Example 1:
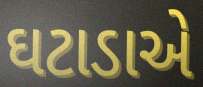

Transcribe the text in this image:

ઘટાડાએ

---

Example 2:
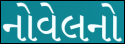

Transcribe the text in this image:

નોવેલનો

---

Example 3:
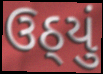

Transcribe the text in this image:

ઉઠ્યું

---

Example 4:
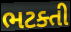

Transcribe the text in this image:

ભટક્તી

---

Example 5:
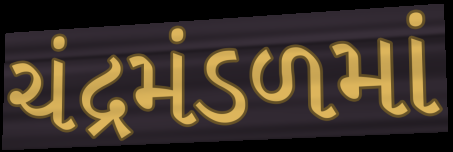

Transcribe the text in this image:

ચંદ્રમંડળમાં